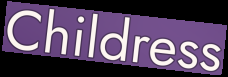
Childress